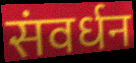
संवर्धन